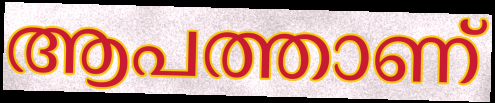
ആപത്താണ്